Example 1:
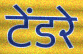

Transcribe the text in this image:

टेंडरे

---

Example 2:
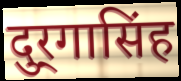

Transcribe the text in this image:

दुर्गासिंह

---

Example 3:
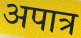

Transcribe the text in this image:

अपात्र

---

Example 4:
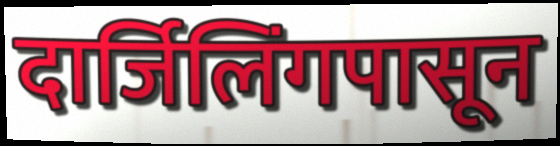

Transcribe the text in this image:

दार्जिलिंगपासून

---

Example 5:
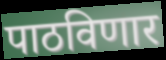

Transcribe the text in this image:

पाठविणार